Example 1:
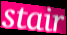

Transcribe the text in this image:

stair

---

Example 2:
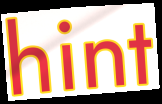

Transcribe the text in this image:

hint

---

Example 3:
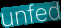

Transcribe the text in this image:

unfed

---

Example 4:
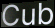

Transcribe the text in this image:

Cub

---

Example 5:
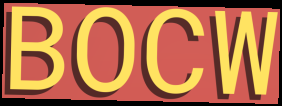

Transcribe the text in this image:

BOCW